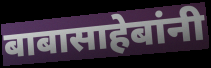
बाबासाहेबांनी